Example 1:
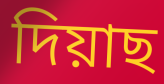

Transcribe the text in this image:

দিয়াছ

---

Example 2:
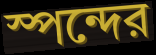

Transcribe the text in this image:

স্পন্দের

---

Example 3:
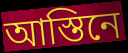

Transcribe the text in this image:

আস্তিনে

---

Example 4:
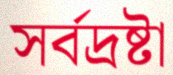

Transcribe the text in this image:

সর্বদ্রষ্টা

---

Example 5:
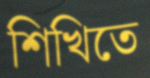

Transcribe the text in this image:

শিখিতে